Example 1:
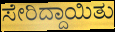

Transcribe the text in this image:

ಸೇರಿದ್ದಾಯಿತು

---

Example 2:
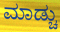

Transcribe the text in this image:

ಮಾಡ್ಚು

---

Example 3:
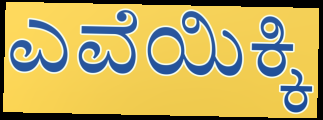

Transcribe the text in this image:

ಎವೆಯಿಕ್ಕಿ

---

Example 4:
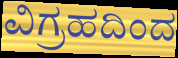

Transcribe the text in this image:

ವಿಗ್ರಹದಿಂದ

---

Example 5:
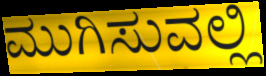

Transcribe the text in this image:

ಮುಗಿಸುವಲ್ಲಿ